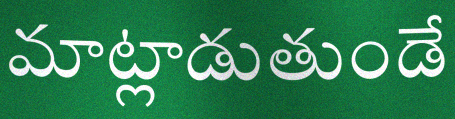
మాట్లాడుతుండే